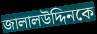
জালালউদ্দিনকে